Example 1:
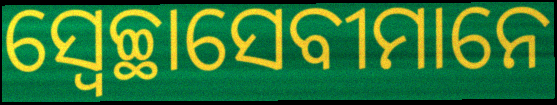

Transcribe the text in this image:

ସ୍ୱେଚ୍ଛାସେବୀମାନେ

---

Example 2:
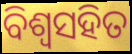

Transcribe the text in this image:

ବିଶ୍ଵସହିତ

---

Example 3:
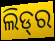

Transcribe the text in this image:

ଲିଡ୍‌ର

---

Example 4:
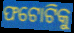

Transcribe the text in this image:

ଫଟୋଟିକୁ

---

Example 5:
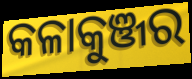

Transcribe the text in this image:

କଳାକୁଞ୍ଜର